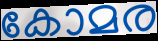
കോമര